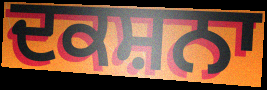
ਦਕਸ਼ਨਾ